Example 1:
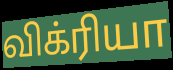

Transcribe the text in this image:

விக்ரியா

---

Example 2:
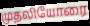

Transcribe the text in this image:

முதலியோரை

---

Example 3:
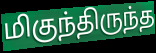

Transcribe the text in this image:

மிகுந்திருந்த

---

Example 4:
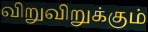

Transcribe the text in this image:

விறுவிறுக்கும்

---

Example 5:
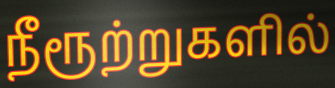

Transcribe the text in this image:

நீரூற்றுகளில்